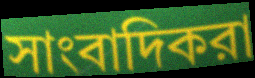
সাংবাদিকরা